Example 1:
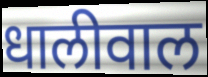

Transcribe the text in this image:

धालीवाल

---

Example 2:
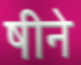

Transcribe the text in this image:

षीने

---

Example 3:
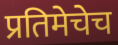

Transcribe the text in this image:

प्रतिमेचेच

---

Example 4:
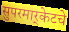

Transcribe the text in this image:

सुपरमार्केटचे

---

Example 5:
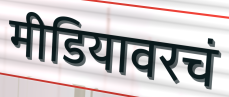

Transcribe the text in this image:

मीडियावरचं